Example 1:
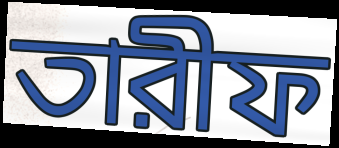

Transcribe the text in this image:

তারীফ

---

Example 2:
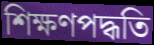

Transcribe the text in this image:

শিক্ষণপদ্ধতি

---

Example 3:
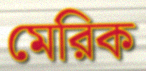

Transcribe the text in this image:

মেরিক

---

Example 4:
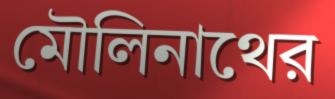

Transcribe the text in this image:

মৌলিনাথের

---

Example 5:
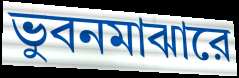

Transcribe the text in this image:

ভুবনমাঝারে